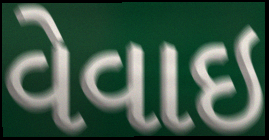
વેવાઇ